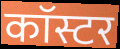
कॉस्टर